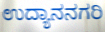
ಉದ್ಯಾನನಗರಿ